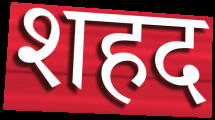
शहद